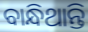
ବାନ୍ଧିଥାନ୍ତି